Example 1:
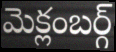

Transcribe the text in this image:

మెక్లంబర్గ్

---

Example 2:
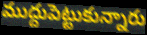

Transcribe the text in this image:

ముద్దుపెట్టుకున్నారు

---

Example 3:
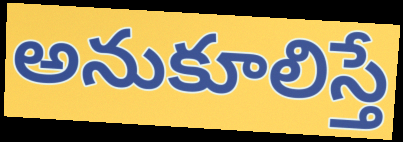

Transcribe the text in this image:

అనుకూలిస్తే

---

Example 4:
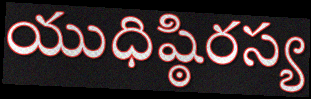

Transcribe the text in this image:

యుధిష్ఠిరస్య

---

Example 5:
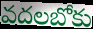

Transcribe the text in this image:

వదలబోకు